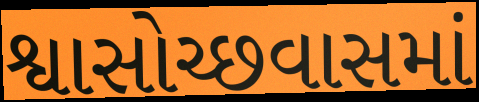
શ્વાસોચ્છવાસમાં